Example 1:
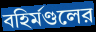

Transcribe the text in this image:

বহির্মণ্ডলের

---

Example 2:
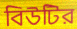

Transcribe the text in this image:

বিউটির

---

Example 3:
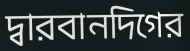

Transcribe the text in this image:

দ্বারবানদিগের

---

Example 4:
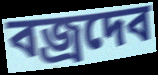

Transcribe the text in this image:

বজ্রদেব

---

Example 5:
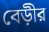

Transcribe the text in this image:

বেড়ীর